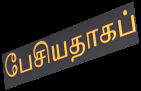
பேசியதாகப்